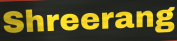
Shreerang